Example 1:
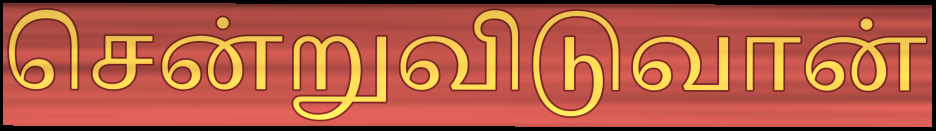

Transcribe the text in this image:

சென்றுவிடுவான்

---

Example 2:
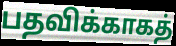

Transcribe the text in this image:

பதவிக்காகத்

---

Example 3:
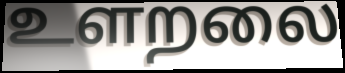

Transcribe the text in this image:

உளறலை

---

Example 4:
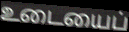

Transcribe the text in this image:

உடையைப்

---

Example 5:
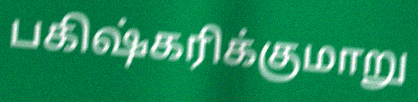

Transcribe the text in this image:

பகிஷ்கரிக்குமாறு